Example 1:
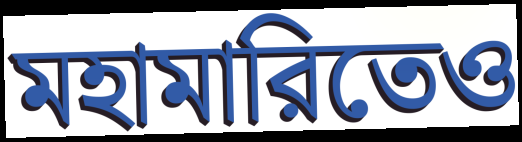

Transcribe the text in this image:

মহামারিতেও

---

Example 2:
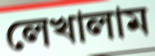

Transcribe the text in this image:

লেখালাম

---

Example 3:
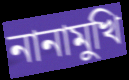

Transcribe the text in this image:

নানামুখি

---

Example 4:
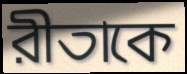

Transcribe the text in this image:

রীতাকে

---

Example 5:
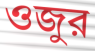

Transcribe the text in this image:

ওজুর